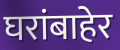
घरांबाहेर